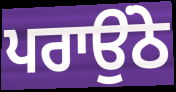
ਪਰਾਉਂਠੇ